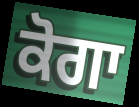
ਕੋਗਾ